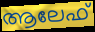
ആലേഫ്